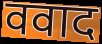
ववाद